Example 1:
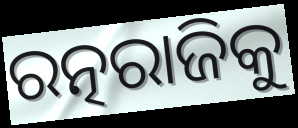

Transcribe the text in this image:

ରତ୍ନରାଜିକୁ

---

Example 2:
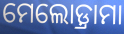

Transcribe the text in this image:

ମେଲୋଡ଼୍ରାମା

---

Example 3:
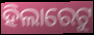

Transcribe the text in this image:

ହିଲାରେଟୁ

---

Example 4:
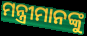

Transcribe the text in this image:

ମନ୍ତ୍ରୀମାନଙ୍କୁ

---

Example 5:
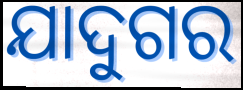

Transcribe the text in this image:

ଯାଦୁଗର